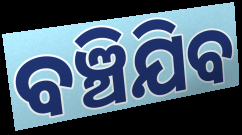
ବଞ୍ଚିଯିବ